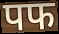
पफ